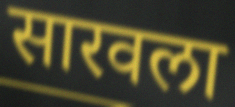
सारवला